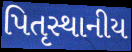
પિતૃસ્થાનીય